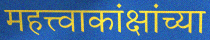
महत्त्वाकांक्षांच्या